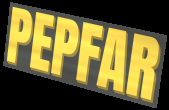
PEPFAR